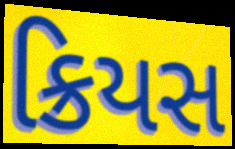
ક્રિયસ